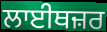
ਲਾਈਥਜ਼ਰ